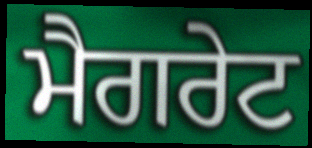
ਮੈਗਰੇਟ